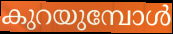
കുറയുമ്പോൾ